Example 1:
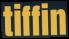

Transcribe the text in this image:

tiffin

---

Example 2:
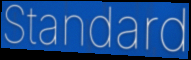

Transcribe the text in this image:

Standard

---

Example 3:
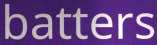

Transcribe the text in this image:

batters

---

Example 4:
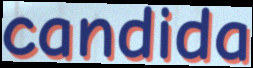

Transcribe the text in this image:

candida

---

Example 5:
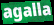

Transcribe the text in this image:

agalla